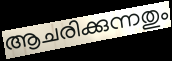
ആചരിക്കുന്നതും